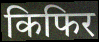
किफिर